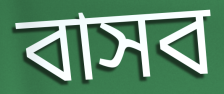
বাসব